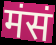
मंसं